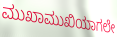
ಮುಖಾಮುಖಿಯಾಗಲೇ